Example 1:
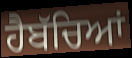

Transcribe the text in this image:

ਹੈਬੱਚਿਆਂ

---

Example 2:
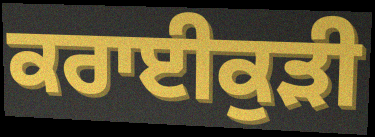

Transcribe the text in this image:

ਕਰਾਈਕੁੜੀ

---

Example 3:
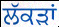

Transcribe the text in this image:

ਲੱਕੜਾਂ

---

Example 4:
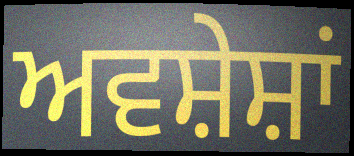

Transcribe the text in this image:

ਅਵਸ਼ੇਸ਼ਾਂ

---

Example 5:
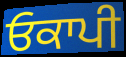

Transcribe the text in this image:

ਓਕਾਪੀ